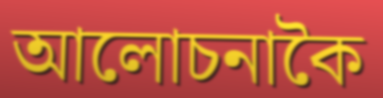
আলোচনাকৈ